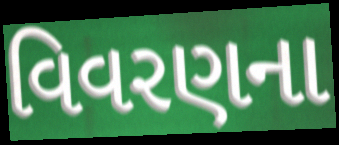
વિવરણના